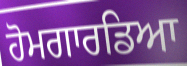
ਹੋਮਗਾਰਡਿਆ